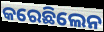
କରେଛିଲେନ